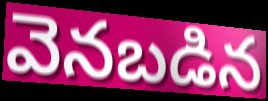
వెనబడిన